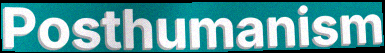
Posthumanism